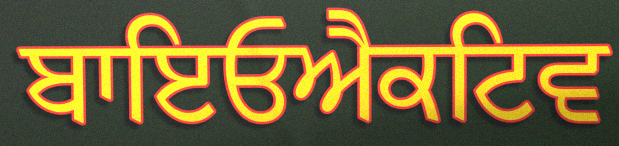
ਬਾਇਓਐਕਟਿਵ